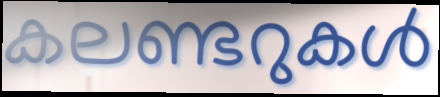
കലണ്ടറുകൾ